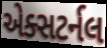
એક્સટર્નલ